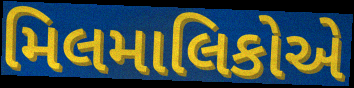
મિલમાલિકોએ